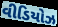
વીડિયોઝ